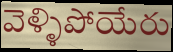
వెళ్ళిపోయేరు